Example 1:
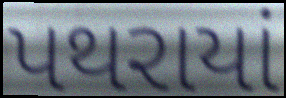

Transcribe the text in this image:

પથરાયાં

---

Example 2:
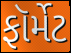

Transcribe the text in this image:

ફૉર્મેટ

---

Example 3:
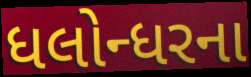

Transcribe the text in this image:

ધલોન્ધરના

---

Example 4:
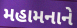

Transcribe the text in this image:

મહામનાને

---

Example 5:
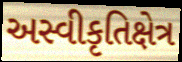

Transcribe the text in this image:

અસ્વીકૃતિક્ષેત્ર